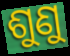
ଶୁଣୁ